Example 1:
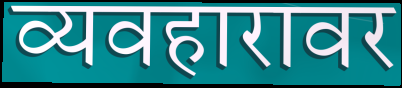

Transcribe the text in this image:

व्यवहारावर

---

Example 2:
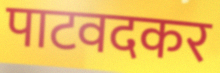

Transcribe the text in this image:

पाटवदकर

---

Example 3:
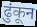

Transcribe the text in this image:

ढुंकून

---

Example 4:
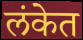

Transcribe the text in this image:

लंकेत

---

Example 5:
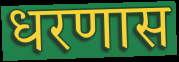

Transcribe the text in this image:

धरणास